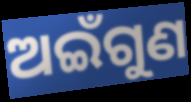
ଅଇଁଗୁଣ